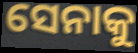
ସେନାକୁ